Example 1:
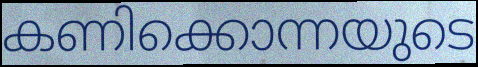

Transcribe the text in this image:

കണിക്കൊന്നയുടെ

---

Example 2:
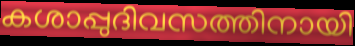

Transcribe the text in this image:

കശാപ്പുദിവസത്തിനായി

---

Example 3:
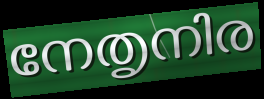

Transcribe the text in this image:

നേതൃനിര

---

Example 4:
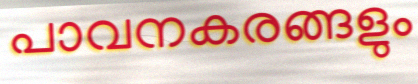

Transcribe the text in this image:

പാവനകരങ്ങളും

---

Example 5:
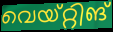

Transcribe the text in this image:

വെയ്റ്റിങ്